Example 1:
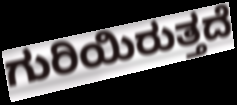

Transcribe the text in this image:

ಗುರಿಯಿರುತ್ತದೆ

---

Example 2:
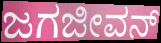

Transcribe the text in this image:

ಜಗಜೀವನ್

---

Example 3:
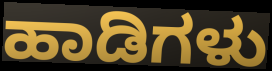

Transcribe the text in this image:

ಹಾಡಿಗಳು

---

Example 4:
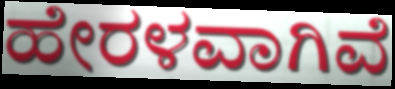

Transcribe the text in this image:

ಹೇರಳವಾಗಿವೆ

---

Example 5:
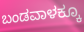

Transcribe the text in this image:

ಬಂಡವಾಳಕ್ಕೂ